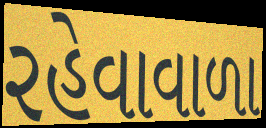
રહેવાવાળા